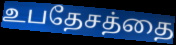
உபதேசத்தை